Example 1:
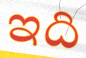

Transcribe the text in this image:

ఇది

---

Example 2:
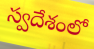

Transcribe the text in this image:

స్వదేశంలో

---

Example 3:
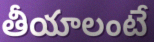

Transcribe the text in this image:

తీయాలంటే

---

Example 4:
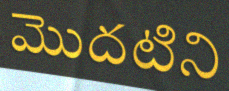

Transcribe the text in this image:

మొదటిని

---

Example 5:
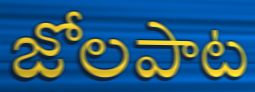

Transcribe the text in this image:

జోలపాట